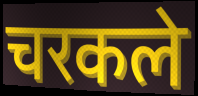
चरकले